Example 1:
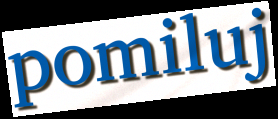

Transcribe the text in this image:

pomiluj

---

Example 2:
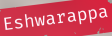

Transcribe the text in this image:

Eshwarappa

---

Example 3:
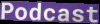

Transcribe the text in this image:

Podcast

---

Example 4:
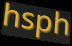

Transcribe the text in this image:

hsph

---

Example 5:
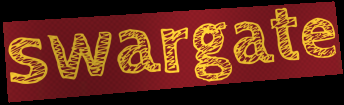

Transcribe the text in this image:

swargate